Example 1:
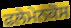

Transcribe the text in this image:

ਫਲੇਮੇਨਕੋਸ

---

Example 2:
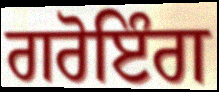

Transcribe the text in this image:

ਗਰੋਇੰਗ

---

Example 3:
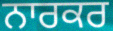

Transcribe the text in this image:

ਨਾਰਕਰ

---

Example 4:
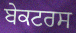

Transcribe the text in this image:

ਬੇਕਟਰਸ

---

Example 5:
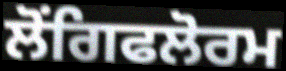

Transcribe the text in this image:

ਲੋਂਗਿਫਲੋਰਮ